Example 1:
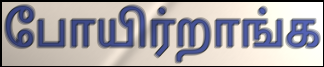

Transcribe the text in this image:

போயிர்றாங்க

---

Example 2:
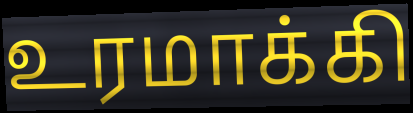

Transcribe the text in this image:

உரமாக்கி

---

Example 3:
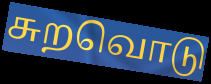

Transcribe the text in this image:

சுறவொடு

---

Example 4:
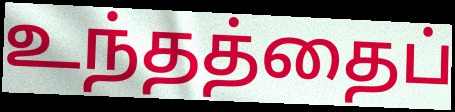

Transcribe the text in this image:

உந்தத்தைப்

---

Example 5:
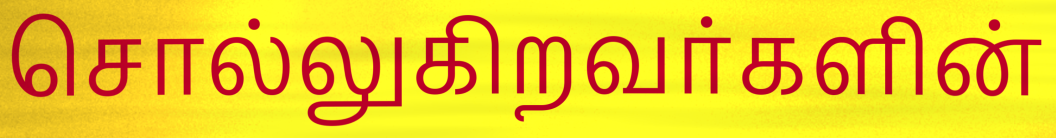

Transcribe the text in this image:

சொல்லுகிறவர்களின்